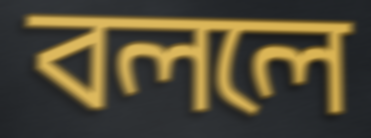
বললে